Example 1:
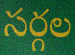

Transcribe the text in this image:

సర్గల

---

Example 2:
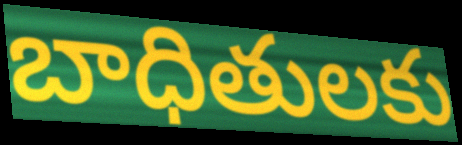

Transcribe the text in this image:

బాధితులకు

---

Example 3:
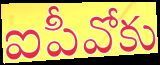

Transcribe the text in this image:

ఐపీవోకు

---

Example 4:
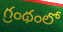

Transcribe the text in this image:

గ్రంథంలో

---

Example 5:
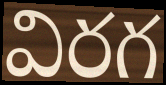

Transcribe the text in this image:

విరగ